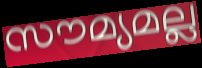
സൗമ്യമല്ല